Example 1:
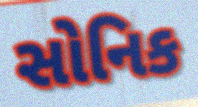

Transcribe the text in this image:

સોનિક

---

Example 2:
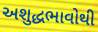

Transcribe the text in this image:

અશુદ્ધભાવોથી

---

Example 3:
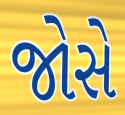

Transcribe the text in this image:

જોસે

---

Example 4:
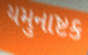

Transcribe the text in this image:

યમુનાષ્ટક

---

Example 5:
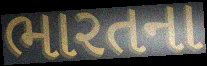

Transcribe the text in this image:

ભારતના